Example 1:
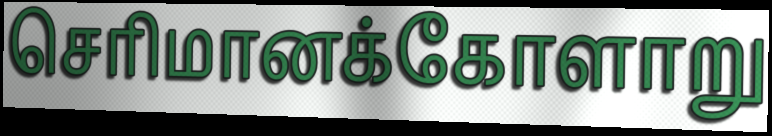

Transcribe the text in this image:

செரிமானக்கோளாறு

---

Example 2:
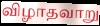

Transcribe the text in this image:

விழாதவாறு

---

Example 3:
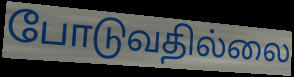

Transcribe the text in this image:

போடுவதில்லை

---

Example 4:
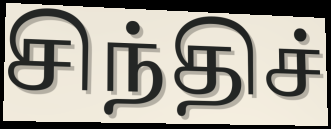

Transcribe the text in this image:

சிந்திச்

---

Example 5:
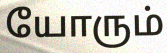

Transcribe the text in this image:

யோரும்